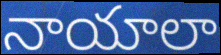
నాయాలా